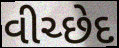
વીચ્છેદ